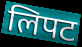
लिपट